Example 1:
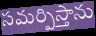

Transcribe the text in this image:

సమర్పిస్తాను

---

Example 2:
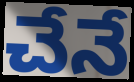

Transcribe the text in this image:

చేనే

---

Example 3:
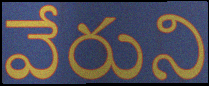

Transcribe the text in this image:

వేరుని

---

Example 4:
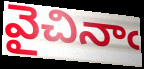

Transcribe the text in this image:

వైచినాఁ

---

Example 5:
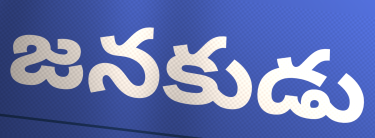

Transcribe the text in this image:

జనకుడు